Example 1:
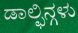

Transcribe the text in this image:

ಡಾಲ್ಫಿನ್ಗಳು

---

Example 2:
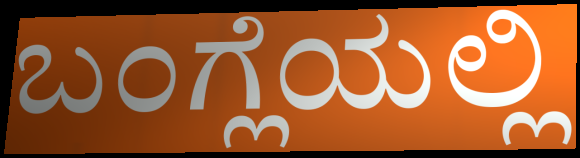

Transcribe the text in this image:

ಬಂಗ್ಲೆಯಲ್ಲಿ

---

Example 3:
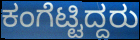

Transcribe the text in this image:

ಕಂಗೆಟ್ಟಿದ್ದರು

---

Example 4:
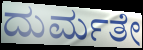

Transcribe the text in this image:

ದುರ್ಮತೇ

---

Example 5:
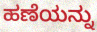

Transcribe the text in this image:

ಹಣೆಯನ್ನು